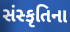
સંસ્કૃતિના